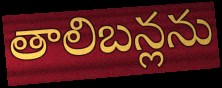
తాలిబన్లను